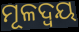
ମୂଳଦ୍ୱୟ